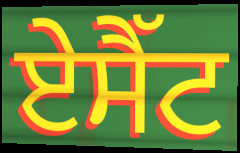
ਏਸੈੱਟ